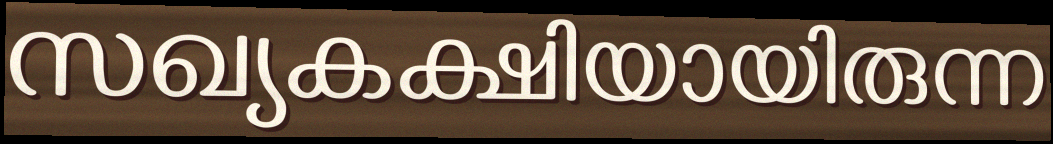
സഖ്യകക്ഷിയായിരുന്ന